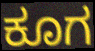
ಕೂಗ